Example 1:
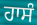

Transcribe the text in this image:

ਹਾਸੰ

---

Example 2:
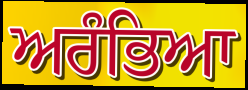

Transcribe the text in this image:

ਅਰੰਭਿਆ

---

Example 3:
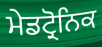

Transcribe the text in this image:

ਮੇਡਟ੍ਰੋਨਿਕ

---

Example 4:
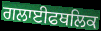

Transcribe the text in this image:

ਗਲਾਈਫਥਲਿਕ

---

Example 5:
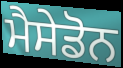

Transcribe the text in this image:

ਮੈਸੇਡੋਨ